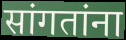
सांगतांना